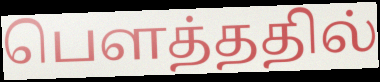
பௌத்ததில்